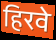
हिरवे